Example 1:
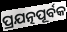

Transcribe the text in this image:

ପ୍ରଯତ୍ନପୂର୍ବକ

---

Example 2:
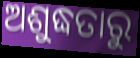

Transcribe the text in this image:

ଅଶୁଦ୍ଧତାରୁ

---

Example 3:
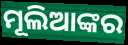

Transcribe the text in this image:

ମୂଲିଆଙ୍କର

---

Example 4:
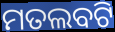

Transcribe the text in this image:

ମତଲବଟି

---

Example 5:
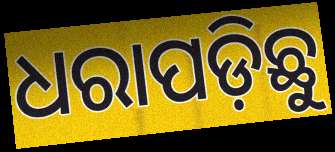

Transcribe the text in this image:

ଧରାପଡ଼ିଛୁ